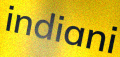
indiani